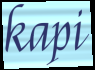
kapi